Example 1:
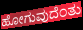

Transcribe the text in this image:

ಹೋಗುವುದೆಂತು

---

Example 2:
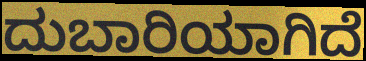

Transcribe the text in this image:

ದುಬಾರಿಯಾಗಿದೆ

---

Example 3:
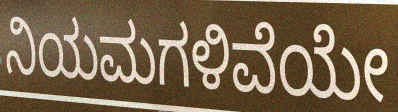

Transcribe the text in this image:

ನಿಯಮಗಳಿವೆಯೇ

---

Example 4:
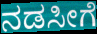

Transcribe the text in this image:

ನಡಸೀಗೆ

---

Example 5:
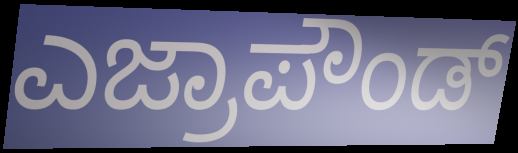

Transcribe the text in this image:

ಎಜ್ರಾಪೌಂಡ್